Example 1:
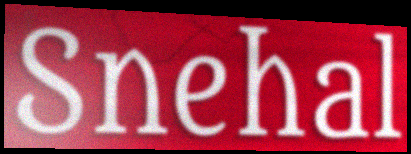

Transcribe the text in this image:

Snehal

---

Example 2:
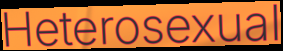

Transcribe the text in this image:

Heterosexual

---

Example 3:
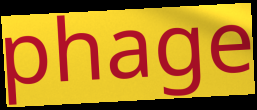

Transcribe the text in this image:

phage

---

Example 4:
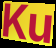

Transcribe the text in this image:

Ku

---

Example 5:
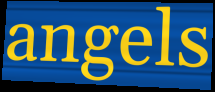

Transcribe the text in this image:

angels